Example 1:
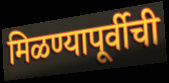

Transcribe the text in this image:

मिळण्यापूर्वीची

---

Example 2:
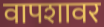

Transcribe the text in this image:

वापशावर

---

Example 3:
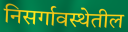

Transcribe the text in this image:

निसर्गावस्थेतील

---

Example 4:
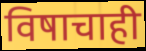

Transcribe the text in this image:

विषाचाही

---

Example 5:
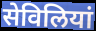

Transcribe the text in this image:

सेविलियां